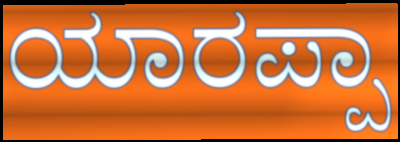
ಯಾರಪ್ಪಾ